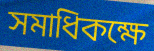
সমাধিকক্ষে